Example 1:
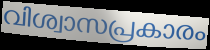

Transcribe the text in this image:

വിശ്വാസപ്രകാരം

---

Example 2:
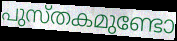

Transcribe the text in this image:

പുസ്തകമുണ്ടോ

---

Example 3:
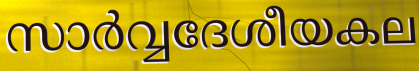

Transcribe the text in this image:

സാർവ്വദേശീയകല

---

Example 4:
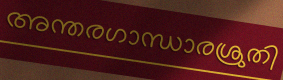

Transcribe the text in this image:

അന്തരഗാന്ധാരശ്രുതി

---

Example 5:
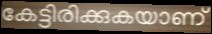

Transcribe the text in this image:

കേട്ടിരിക്കുകയാണ്